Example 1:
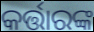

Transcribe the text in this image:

କର୍ତ୍ତାରଙ୍କ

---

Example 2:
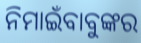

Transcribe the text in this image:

ନିମାଇଁବାବୁଙ୍କର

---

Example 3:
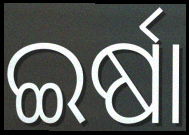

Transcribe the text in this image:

ଇର୍ଷା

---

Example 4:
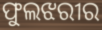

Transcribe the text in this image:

ଫୁଲଝରୀର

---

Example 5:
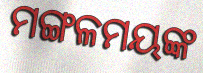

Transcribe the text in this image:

ମଙ୍ଗଳମୟଙ୍କ